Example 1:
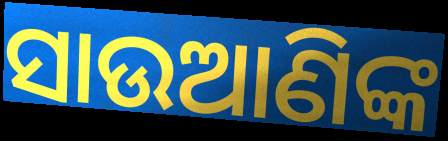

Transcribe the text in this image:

ସାଉଆଣିଙ୍କ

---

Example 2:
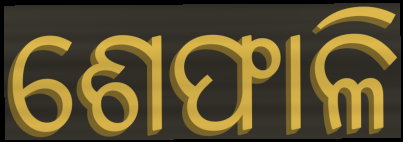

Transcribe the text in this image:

ଶେଫାଳି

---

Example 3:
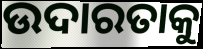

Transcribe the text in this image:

ଉଦାରତାକୁ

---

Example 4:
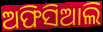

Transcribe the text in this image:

ଅଫିସିଆଲି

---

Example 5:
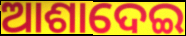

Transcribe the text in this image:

ଆଶାଦେଇ